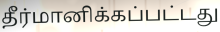
தீர்மானிக்கப்பட்டது